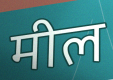
मील